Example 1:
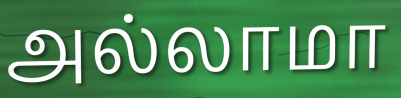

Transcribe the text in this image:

அல்லாமா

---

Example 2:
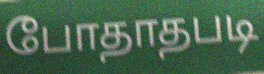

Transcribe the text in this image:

போதாதபடி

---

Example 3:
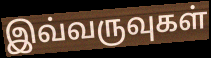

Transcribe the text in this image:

இவ்வருவுகள்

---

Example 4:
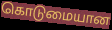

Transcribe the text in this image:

கொடுமையான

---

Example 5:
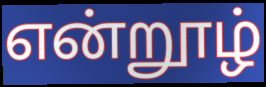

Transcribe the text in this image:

என்றூழ்